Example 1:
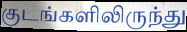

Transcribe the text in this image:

குடங்களிலிருந்து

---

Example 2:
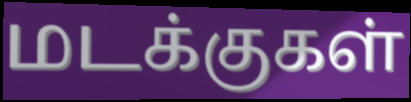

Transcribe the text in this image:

மடக்குகள்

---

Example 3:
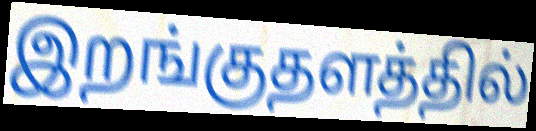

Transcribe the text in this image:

இறங்குதளத்தில்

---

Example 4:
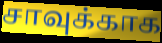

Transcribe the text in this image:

சாவுக்காக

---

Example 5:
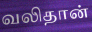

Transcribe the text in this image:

வலிதான்